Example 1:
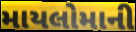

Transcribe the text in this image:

માયલોમાની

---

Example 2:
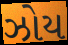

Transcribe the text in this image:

ઝોય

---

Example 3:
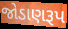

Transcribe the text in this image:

જોડાણરૂપ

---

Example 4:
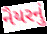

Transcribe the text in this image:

નૈયરનું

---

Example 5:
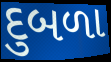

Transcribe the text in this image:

દુબળા